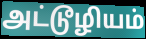
அட்டூழியம்